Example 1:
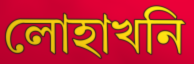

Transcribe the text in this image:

লোহাখনি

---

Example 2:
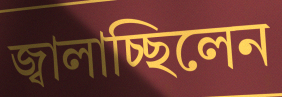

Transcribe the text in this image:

জ্বালাচ্ছিলেন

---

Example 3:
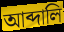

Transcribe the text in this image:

আব্দালি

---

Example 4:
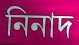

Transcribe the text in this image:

নিনাদ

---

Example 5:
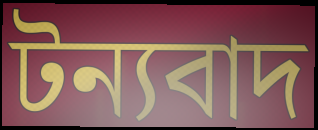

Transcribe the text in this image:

টন্যবাদ